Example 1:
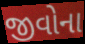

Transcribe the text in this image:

જીવોના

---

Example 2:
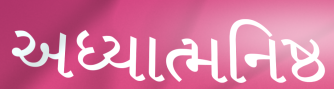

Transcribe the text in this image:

અધ્યાત્મનિષ્ઠ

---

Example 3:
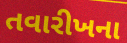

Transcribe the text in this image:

તવારીખના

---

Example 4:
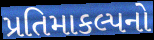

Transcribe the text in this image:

પ્રતિમાકલ્પનો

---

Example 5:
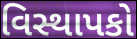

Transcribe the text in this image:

વિસ્થાપકો